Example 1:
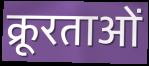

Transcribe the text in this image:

क्रूरताओं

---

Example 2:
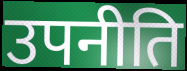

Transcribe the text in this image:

उपनीति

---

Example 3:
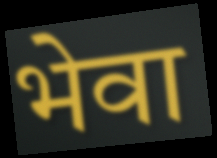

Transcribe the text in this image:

भेवा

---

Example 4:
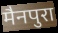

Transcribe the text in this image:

मैनपुरा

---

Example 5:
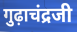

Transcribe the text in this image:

गुढ़ाचंद्रजी